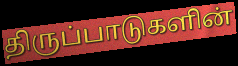
திருப்பாடுகளின்